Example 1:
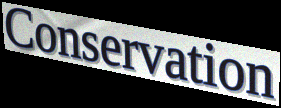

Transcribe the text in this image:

Conservation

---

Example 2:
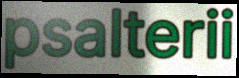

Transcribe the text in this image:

psalterii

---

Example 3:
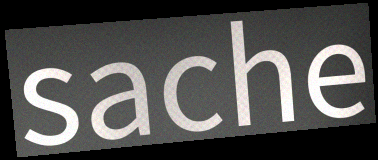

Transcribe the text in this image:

sache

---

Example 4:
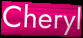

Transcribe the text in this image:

Cheryl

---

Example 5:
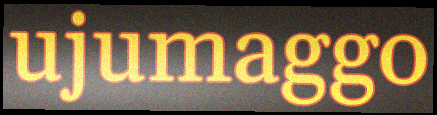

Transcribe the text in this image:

ujumaggo